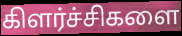
கிளர்ச்சிகளை